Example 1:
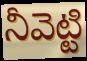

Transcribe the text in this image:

నీవెట్టి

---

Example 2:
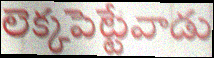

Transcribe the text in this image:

లెక్కపెట్టేవాడు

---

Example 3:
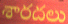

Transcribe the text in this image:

శారదలు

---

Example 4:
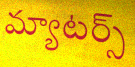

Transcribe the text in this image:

మ్యాటర్స్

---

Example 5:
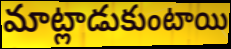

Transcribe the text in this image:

మాట్లాడుకుంటాయి